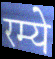
रम्ये